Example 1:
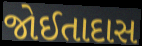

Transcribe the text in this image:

જોઈતાદાસ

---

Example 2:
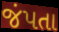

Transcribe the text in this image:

જંપતા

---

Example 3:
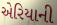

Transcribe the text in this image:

એરિયાની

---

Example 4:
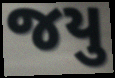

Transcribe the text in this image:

જયુ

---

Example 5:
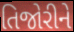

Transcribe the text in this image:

તિજોરીને